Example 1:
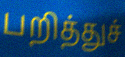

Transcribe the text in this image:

பறித்துச்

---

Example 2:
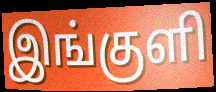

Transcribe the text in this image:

இங்குளி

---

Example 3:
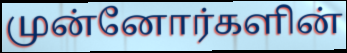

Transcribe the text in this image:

முன்னோர்களின்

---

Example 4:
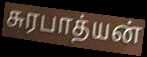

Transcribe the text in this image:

சுரபாத்யன்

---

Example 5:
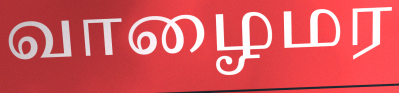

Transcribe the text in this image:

வாழைமர